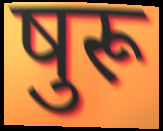
षुरू